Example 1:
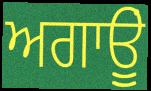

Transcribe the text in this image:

ਅਗਾਊੂਂ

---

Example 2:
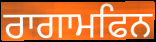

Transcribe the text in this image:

ਰਾਗਾਮਫਿਨ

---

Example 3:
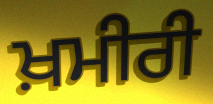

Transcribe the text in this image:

ਖ਼ਮੀਰੀ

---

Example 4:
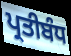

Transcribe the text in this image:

ਪ੍ਰਤੀਬੰਧ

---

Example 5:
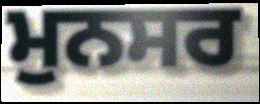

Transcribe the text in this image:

ਮੁਨਸਰ